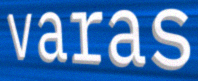
varas